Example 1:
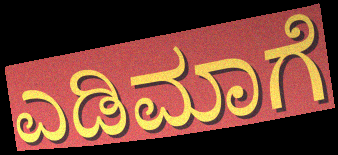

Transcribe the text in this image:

ಎಡಿಮಾಗೆ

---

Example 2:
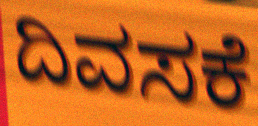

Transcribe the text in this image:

ದಿವಸಕೆ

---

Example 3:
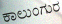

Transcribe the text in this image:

ಕಾಲುಂಗುರ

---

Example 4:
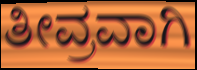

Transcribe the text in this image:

ತೀವ್ರವಾಗಿ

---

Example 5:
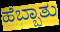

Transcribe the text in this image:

ಹೆಬ್ಬಾತು